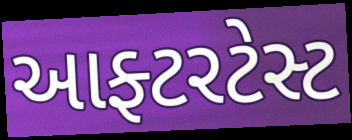
આફ્ટરટેસ્ટ